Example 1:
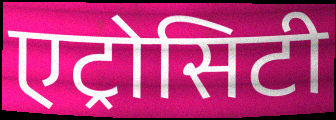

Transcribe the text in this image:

एट्रोसिटी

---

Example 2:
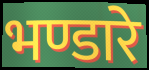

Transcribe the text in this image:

भण्डारे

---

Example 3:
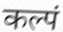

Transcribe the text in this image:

कल्पं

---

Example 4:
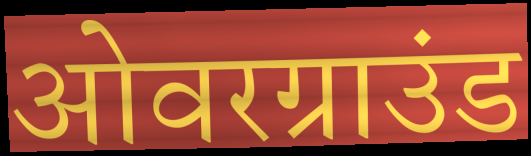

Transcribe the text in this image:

ओवरग्राउंड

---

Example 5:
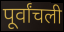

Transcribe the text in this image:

पूर्वांचली